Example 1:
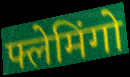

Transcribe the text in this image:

फ्लेमिंगो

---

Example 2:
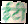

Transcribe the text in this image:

ईटी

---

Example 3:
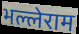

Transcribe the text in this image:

भल्लेराम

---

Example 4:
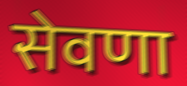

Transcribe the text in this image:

सेवणा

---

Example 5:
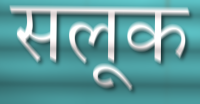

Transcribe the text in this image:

सलूक